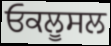
ਓਕਲੂਸਲ